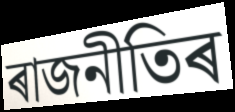
ৰাজনীতিৰ